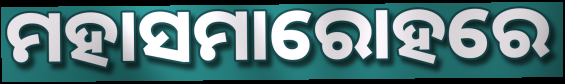
ମହାସମାରୋହରେ